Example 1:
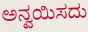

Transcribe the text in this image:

ಅನ್ವಯಿಸದು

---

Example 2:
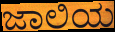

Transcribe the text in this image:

ಜಾಲಿಯ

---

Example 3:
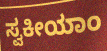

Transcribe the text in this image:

ಸ್ವಕೀಯಾಂ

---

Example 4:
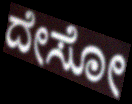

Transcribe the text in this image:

ದೇಸೋ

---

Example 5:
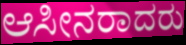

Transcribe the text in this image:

ಆಸೀನರಾದರು